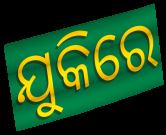
ଯୁକିରେ